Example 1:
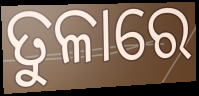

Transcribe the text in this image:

ତୁଳାରେ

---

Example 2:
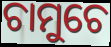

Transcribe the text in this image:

ଚାମୁଚେ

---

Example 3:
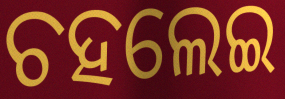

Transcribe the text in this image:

ଚହଲେଇ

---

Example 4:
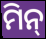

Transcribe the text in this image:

ମିନ୍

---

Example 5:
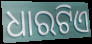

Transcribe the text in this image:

ଧାରଟିଏ